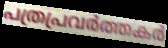
പത്രപ്രവർത്തകർ